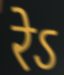
रेऽ